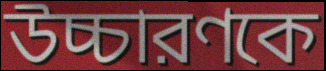
উচ্চারণকে